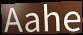
Aahe